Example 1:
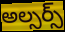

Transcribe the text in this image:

అల్సర్స్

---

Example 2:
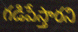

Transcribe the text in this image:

గడిపేస్తారని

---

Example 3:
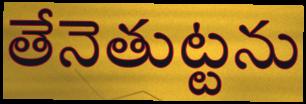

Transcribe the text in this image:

తేనెతుట్టను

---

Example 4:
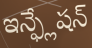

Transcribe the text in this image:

ఇన్ఫ్లేషన్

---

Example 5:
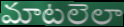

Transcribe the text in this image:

మాటలెలా